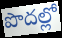
పొదల్లో